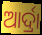
ଆର୍ଦ୍ରା